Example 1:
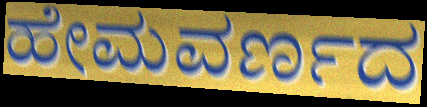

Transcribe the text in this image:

ಹೇಮವರ್ಣದ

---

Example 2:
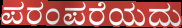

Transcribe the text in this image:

ಪರಂಪರೆಯದು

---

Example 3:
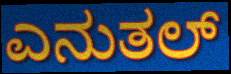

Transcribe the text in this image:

ಎನುತಲ್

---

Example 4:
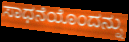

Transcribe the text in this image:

ಸಾಧನೆಯೊಂದನ್ನು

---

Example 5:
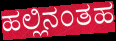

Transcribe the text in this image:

ಹಲ್ಲಿನಂತಹ